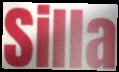
Silla